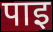
पाइ